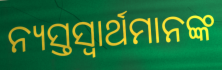
ନ୍ୟସ୍ତସ୍ଵାର୍ଥମାନଙ୍କ